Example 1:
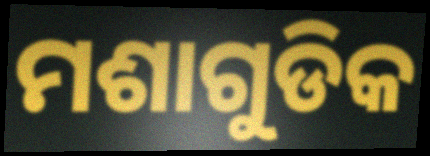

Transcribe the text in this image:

ମଶାଗୁଡିକ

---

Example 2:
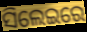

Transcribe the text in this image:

ସିଲେଇରେ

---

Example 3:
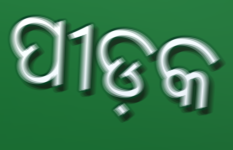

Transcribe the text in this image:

ପୀଡ଼କ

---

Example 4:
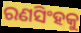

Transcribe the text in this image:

ରଣସିଂହକୁ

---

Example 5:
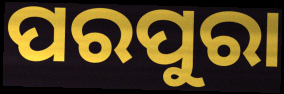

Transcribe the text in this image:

ପରପୁରା